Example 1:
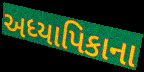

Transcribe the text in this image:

અધ્યાપિકાના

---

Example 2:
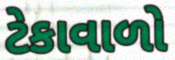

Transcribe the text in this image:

ટેકાવાળો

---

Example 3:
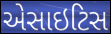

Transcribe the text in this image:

એસાઇટિસ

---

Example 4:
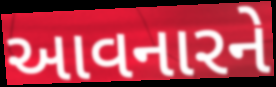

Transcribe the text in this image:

આવનારને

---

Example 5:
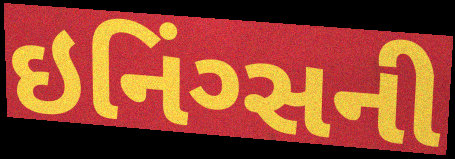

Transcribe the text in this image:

ઇનિંગ્સની